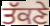
ਤੱਕਣੇ